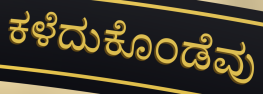
ಕಳೆದುಕೊಂಡೆವು